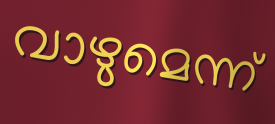
വാഴുമെന്ന്